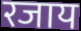
रजाय